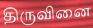
திருவினை